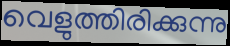
വെളുത്തിരിക്കുന്നു